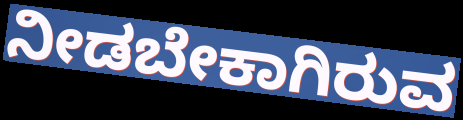
ನೀಡಬೇಕಾಗಿರುವ